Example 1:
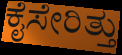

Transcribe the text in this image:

ಕೈಸೇರಿತ್ತು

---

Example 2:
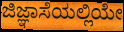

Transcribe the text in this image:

ಜಿಜ್ಞಾಸೆಯಲ್ಲಿಯೇ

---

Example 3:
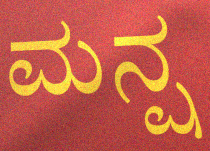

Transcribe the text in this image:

ಮನ್ಷ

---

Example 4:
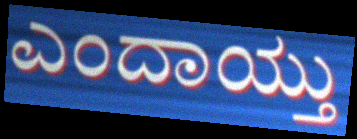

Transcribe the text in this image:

ಎಂದಾಯ್ತು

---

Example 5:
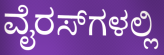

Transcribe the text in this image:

ವೈರಸ್‌ಗಳಲ್ಲಿ